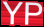
YP